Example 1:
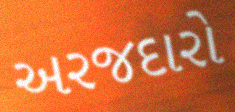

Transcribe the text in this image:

અરજદારો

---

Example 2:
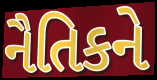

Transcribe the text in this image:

નૈતિકને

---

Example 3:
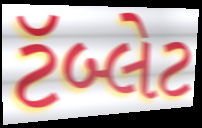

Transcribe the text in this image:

ટૅબ્લેટ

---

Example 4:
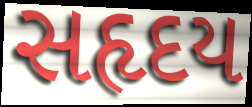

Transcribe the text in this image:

સહૃદય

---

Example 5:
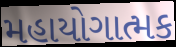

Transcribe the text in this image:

મહાયોગાત્મક